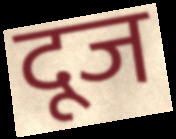
दूज